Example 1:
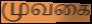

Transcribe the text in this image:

முவகை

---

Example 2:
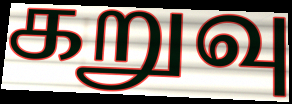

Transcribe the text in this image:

கறுவு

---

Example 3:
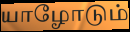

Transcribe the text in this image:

யாழோடும்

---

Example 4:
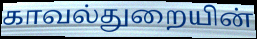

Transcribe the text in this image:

காவல்துறையின்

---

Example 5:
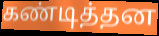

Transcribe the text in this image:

கண்டித்தன